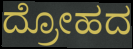
ದ್ರೋಹದ